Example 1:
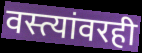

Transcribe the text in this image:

वस्त्यांवरही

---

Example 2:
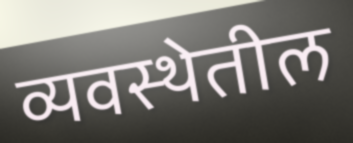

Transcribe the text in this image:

व्यवस्थेतील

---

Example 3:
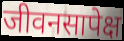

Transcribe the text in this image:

जीवनसापेक्ष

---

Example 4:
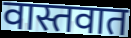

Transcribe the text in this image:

वास्तवात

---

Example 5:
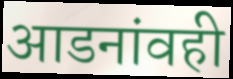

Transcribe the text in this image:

आडनांवही